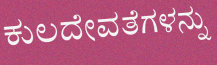
ಕುಲದೇವತೆಗಳನ್ನು